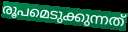
രൂപമെടുക്കുന്നത്